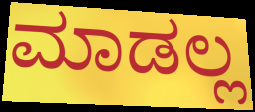
ಮಾಡಲ್ಲ